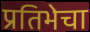
प्रतिभेचा